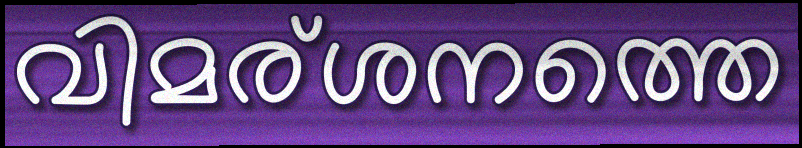
വിമര്ശനത്തെ